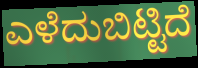
ಎಳೆದುಬಿಟ್ಟಿದೆ